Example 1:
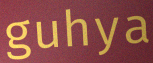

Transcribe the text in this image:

guhya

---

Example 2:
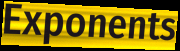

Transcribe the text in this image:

Exponents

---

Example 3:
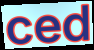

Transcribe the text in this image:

ced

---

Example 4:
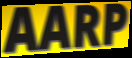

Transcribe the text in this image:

AARP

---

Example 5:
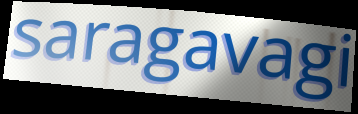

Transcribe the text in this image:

saragavagi